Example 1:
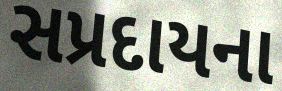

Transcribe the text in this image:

સપ્રદાયના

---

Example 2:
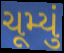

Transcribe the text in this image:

ચૂમ્યું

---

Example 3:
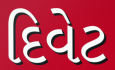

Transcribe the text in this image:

દિવેટ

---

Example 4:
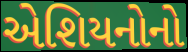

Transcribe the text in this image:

એશિયનોનો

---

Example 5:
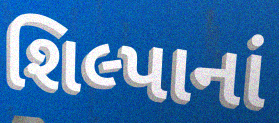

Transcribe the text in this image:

શિલ્પાનાં